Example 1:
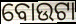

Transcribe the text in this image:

ବୋଉଟା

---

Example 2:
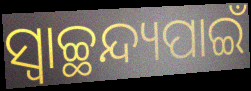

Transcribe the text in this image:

ସ୍ୱାଚ୍ଛନ୍ଦ୍ୟପାଇଁ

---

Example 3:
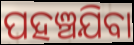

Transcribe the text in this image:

ପହଞ୍ଚଯିବା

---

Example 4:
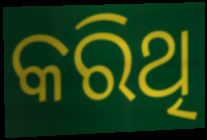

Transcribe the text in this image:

କରିଥି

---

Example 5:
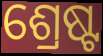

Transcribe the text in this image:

ଶ୍ରେଷ୍ଟ